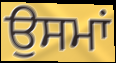
ਉਸਮਾਂ